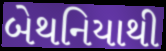
બેથનિયાથી